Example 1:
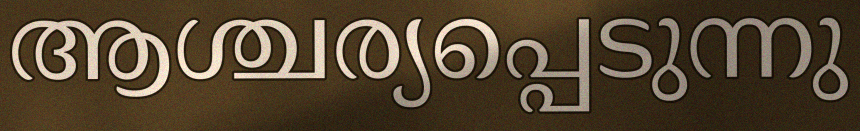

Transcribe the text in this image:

ആശ്ചര്യപ്പെടുന്നു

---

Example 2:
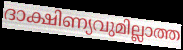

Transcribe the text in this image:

ദാക്ഷിണ്യവുമില്ലാത്ത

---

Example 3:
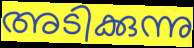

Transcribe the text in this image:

അടിക്കുന്നു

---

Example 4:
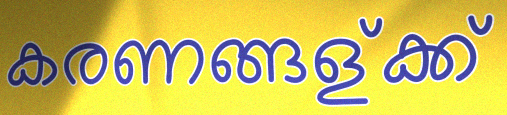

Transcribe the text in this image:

കരണങ്ങള്ക്ക്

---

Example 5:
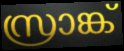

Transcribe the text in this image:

സ്രാങ്ക്